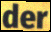
der